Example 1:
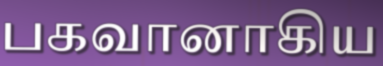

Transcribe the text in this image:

பகவானாகிய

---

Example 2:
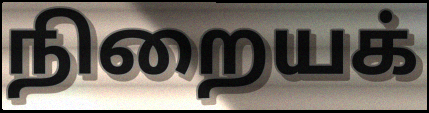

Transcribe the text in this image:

நிறையக்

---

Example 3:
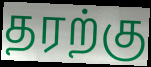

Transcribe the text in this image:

தரற்கு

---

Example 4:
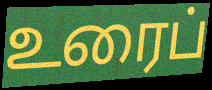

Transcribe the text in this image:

உரைப்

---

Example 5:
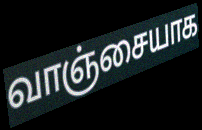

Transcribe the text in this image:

வாஞ்சையாக